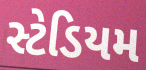
સ્ટેડિયમ